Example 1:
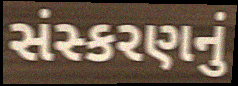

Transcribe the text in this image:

સંસ્કરણનું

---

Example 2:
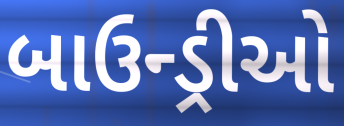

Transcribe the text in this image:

બાઉન્ડ્રીઓ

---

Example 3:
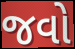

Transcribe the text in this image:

જવો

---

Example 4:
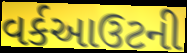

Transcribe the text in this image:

વર્કઆઉટની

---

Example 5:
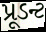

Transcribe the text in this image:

પ્રૂડન્ટ